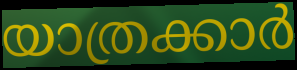
യാത്രക്കാർ